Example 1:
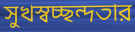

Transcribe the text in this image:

সুখস্বচ্ছন্দতার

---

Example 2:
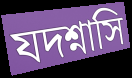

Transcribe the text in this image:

যদশ্নাসি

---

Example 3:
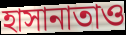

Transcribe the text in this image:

হাসানাতাও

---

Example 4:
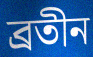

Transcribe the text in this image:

ব্রতীন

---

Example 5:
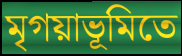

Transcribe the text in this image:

মৃগয়াভূমিতে